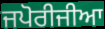
ਜਪੋਰੀਜੀਆ